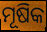
ମୂଷିକ